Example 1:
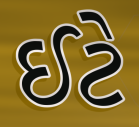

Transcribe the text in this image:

ઈટે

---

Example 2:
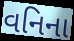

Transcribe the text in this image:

વનિના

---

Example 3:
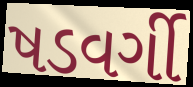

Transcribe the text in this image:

ષડવર્ગી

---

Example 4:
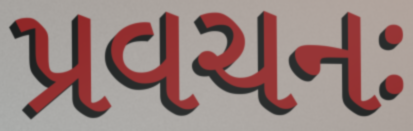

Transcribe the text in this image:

પ્રવચનઃ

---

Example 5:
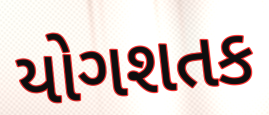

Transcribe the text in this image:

યોગશતક